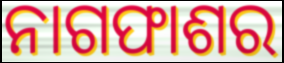
ନାଗଫାଶର